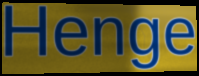
Henge